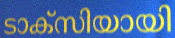
ടാക്സിയായി